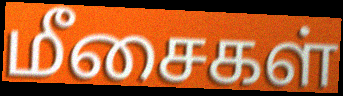
மீசைகள்